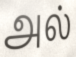
அல்